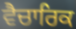
ਵੈਚਾਰਿਕ